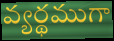
వ్యర్థముగా